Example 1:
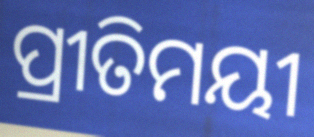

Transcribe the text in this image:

ପ୍ରୀତିମୟୀ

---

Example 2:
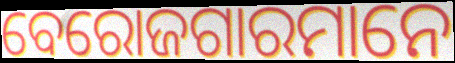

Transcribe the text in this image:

ବେରୋଜଗାରମାନେ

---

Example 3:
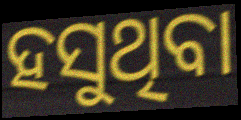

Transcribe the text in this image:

ହସୁଥିବା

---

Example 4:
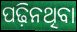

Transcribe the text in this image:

ପଢ଼ିନଥିବା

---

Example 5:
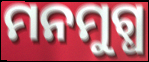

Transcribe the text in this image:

ମନମୁଗ୍ଧ